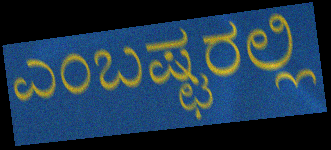
ಎಂಬಷ್ಟರಲ್ಲಿ